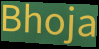
Bhoja